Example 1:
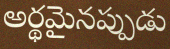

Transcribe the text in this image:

అర్థమైనప్పుడు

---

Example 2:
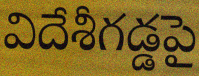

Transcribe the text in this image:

విదేశీగడ్డపై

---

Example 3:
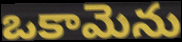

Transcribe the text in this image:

ఒకామెను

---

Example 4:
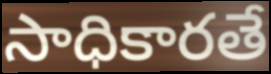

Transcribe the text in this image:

సాధికారతే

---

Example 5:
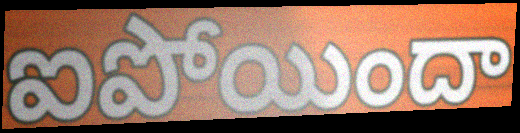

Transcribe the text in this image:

ఐపోయిందా